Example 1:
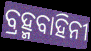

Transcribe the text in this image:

ବ୍ରହ୍ମବାହିନୀ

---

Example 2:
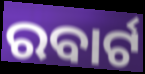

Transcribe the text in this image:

ରବାର୍ଟ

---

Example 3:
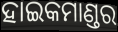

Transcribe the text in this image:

ହାଇକମାଣ୍ଡର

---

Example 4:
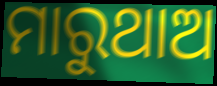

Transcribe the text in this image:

ମାରୁଥାଅ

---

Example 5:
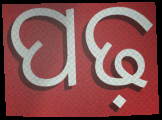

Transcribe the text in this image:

ପଢ଼